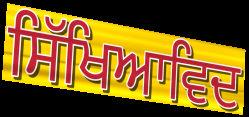
ਸਿੱਖਿਆਵਿਦ